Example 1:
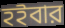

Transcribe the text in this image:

হইবার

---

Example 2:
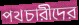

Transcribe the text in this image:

পথচারীদের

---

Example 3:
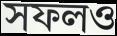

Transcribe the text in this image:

সফলও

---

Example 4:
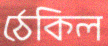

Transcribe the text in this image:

ঠেকিল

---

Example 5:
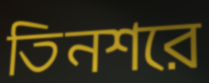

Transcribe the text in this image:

তিনশরে